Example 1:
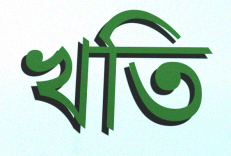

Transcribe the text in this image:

খতি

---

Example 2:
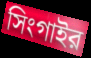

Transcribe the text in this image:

সিংগাইর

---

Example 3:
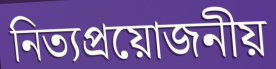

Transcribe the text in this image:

নিত্যপ্রয়োজনীয়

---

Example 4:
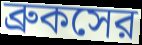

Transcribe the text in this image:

ব্রুকসের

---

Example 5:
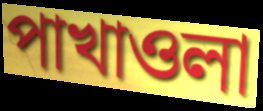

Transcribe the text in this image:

পাখাওলা